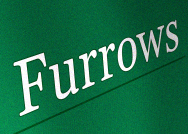
Furrows